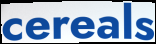
cereals